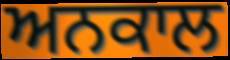
ਅਨਕਾਲ